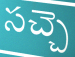
సచ్చె